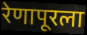
रेणापूरला